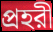
প্রহরী